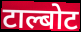
टाल्बोट